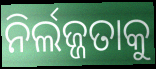
ନିର୍ଲଜ୍ଜତାକୁ